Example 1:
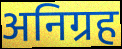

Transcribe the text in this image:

अनिग्रह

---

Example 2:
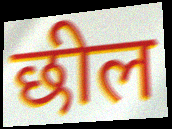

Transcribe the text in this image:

छील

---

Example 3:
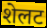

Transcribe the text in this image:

शेलट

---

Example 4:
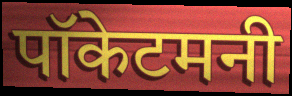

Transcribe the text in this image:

पॉकेटमनी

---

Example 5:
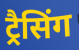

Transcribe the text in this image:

ट्रैसिंग